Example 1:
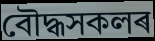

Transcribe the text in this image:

বৌদ্ধসকলৰ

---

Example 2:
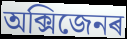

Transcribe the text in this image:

অক্সিজেনৰ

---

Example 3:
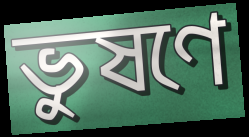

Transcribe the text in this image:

ভুষণে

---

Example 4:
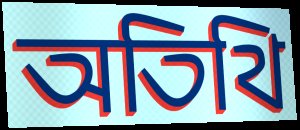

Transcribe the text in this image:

অতিথি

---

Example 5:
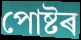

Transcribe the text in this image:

পোষ্টৰ